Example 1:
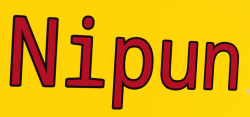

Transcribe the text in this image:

Nipun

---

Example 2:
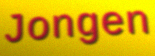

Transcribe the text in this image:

Jongen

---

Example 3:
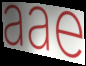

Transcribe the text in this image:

aae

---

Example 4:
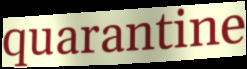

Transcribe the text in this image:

quarantine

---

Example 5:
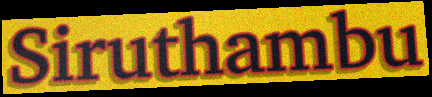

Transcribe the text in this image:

Siruthambu